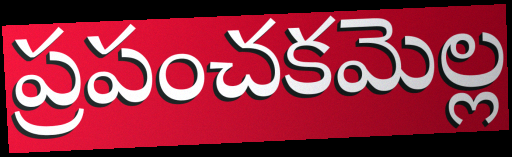
ప్రపంచకమెల్ల